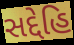
સદ્દેહિ